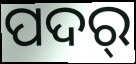
ପଦର୍